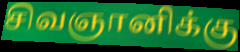
சிவஞானிக்கு